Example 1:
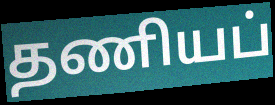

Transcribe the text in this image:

தணியப்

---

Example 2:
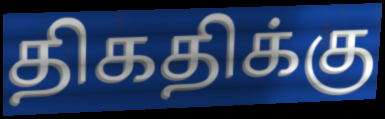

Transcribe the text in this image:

திகதிக்கு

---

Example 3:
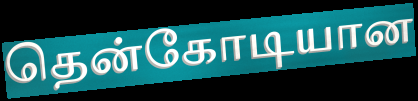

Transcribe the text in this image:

தென்கோடியான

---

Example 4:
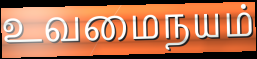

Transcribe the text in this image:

உவமைநயம்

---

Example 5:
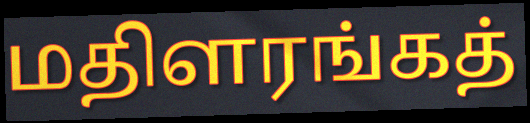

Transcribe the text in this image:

மதிளரங்கத்